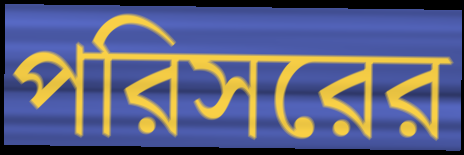
পরিসরের